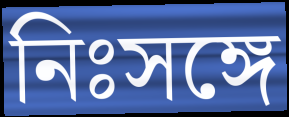
নিঃসঙ্গে